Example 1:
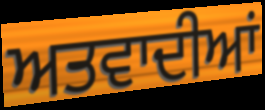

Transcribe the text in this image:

ਅਤਵਾਦੀਆਂ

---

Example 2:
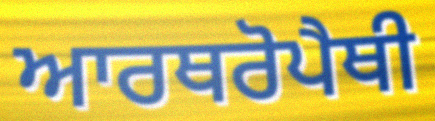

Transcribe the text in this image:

ਆਰਥਰੋਪੈਥੀ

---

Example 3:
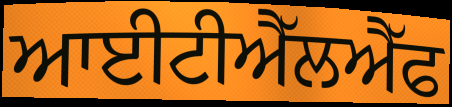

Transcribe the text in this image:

ਆਈਟੀਐੱਲਐੱਫ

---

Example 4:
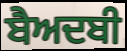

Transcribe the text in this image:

ਬੈਅਦਬੀ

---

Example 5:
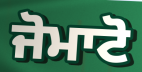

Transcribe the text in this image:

ਜੋਮਾਟੋ